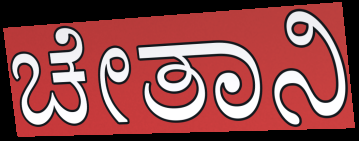
ಚೇತಾನಿ